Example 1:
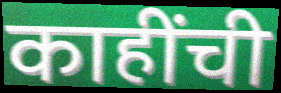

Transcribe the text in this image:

काहींची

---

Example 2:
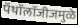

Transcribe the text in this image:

पॅथॉलॉजीजमुळे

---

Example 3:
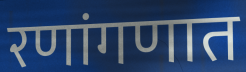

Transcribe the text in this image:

रणांगणात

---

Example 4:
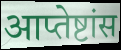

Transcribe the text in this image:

आप्तेष्टांस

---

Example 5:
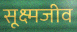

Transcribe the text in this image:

सूक्ष्मजीव